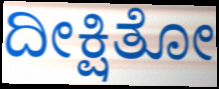
ದೀಕ್ಷಿತೋ